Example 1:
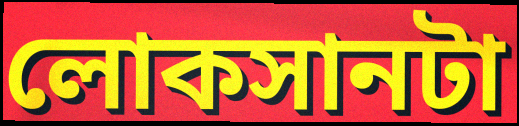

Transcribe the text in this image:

লোকসানটা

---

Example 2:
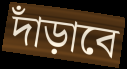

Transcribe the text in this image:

দাঁড়াবে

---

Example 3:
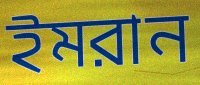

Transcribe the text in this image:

ইমরান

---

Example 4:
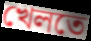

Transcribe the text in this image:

খেলতে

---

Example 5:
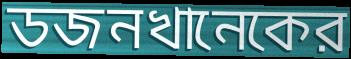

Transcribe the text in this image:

ডজনখানেকের